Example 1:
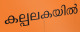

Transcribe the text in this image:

കല്പലകയിൽ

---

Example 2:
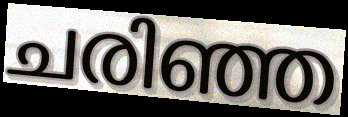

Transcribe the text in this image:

ചരിഞ്ഞ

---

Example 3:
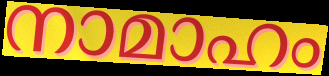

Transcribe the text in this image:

നാമാഹം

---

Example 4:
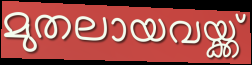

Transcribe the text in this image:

മുതലായവയ്ക്ക്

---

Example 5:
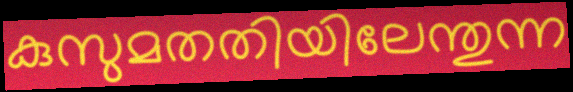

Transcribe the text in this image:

കുസുമതതിയിലേന്തുന്ന